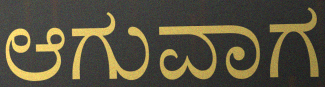
ಆಗುವಾಗ